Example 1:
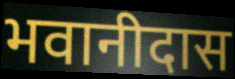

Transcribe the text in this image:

भवानीदास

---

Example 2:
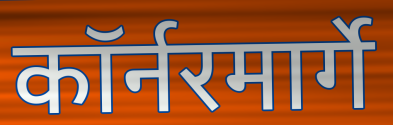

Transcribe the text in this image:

कॉर्नरमार्गे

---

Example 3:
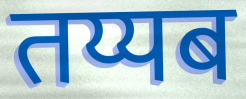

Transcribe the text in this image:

तय्यब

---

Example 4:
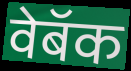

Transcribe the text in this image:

वेबॅक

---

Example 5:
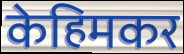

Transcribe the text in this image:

केहिमकर